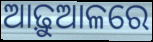
ଆଢ଼ୁଆଳରେ